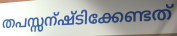
തപസ്സന്ഷ്ടിക്കേണ്ടത്